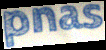
pnas